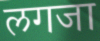
लगजा